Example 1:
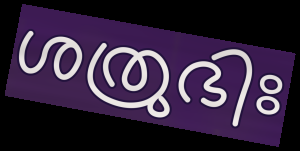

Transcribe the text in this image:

ശത്രുഭിഃ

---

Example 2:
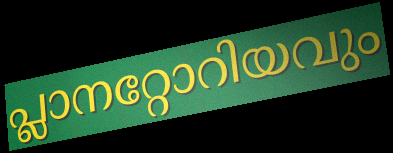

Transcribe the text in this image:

പ്ലാനറ്റോറിയവും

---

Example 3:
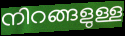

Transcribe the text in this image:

നിറങ്ങളുള്ള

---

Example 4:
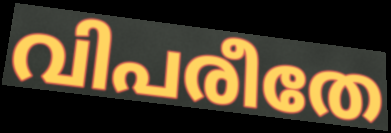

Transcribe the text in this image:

വിപരീതേ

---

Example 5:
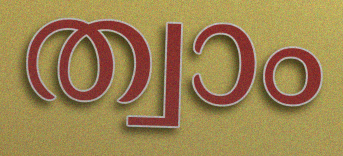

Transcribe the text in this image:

ത്വാം